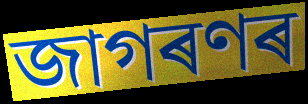
জাগৰণৰ